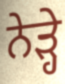
ਨੇੜ੍ਹੇ